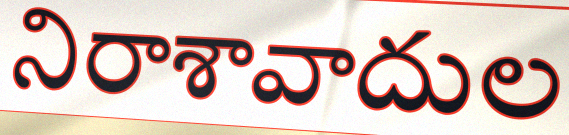
నిరాశావాదుల